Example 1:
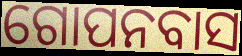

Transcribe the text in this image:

ଗୋପନବାସ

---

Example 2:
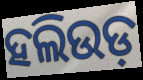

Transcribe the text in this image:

ହଲିଉଡ଼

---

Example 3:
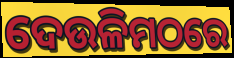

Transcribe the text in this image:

ଦେଉଳିମଠରେ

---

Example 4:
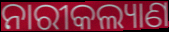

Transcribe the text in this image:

ନାରୀକଲ୍ୟାଣ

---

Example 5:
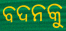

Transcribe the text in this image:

ବଦନକୁ